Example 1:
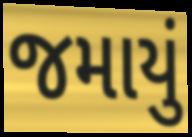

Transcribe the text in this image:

જમાયું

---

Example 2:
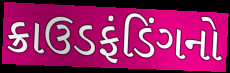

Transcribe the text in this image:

ક્રાઉડફંડિંગનો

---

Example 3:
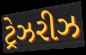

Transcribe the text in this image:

ટ્રેઝરીઝ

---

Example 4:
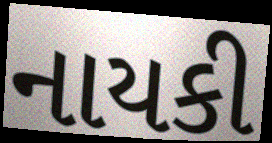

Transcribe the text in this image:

નાયકી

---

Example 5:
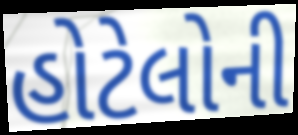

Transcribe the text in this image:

હોટેલોની